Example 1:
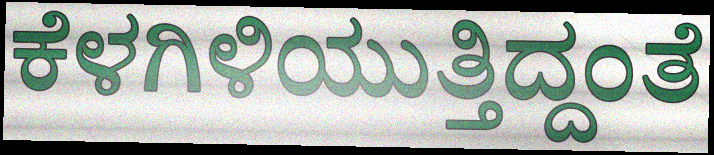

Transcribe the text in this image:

ಕೆಳಗಿಳಿಯುತ್ತಿದ್ದಂತೆ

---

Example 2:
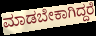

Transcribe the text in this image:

ಮಾಡಬೇಕಾಗಿದ್ದರೆ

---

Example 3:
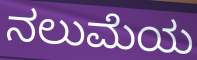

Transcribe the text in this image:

ನಲುಮೆಯ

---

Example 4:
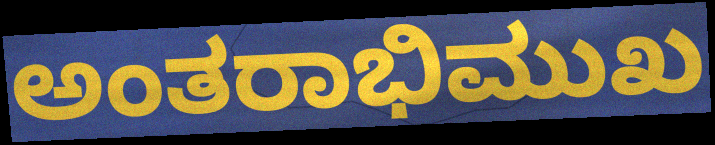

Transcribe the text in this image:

ಅಂತರಾಭಿಮುಖ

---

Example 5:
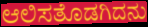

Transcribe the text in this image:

ಆಲಿಸತೊಡಗಿದನು